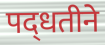
पद्‍धतीने